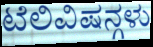
ಟೆಲಿವಿಷನ್ಗಳು